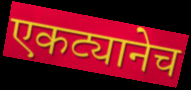
एकट्यानेच